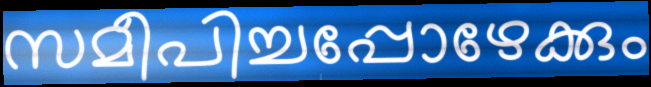
സമീപിച്ചപ്പോഴേക്കും